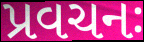
પ્રવચનઃ